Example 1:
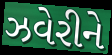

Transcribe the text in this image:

ઝવેરીને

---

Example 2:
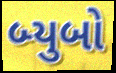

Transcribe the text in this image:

બ્યુબો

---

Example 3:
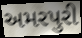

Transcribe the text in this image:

અમરપુરી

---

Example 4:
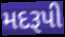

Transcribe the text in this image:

મદરૂપી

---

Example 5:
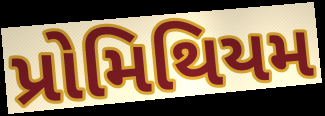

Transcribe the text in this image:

પ્રોમિથિયમ